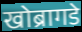
खोब्रागडे